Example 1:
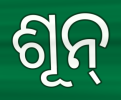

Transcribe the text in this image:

ଶୂନ୍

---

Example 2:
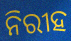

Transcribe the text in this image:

ନିରୀହ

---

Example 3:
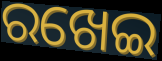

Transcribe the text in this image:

ରଖେଇ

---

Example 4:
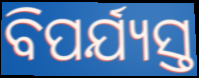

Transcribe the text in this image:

ବିପର୍ଯ୍ୟସ୍ତ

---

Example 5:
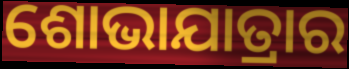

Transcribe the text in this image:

ଶୋଭାଯାତ୍ରାର